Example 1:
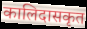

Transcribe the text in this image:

कालिदासकृत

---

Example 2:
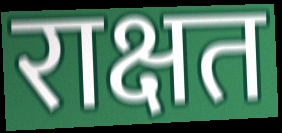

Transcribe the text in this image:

राक्षत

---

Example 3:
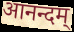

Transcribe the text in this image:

आनन्दम्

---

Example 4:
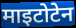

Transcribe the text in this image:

माइटोटेन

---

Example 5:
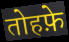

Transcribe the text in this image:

तोहफ़े